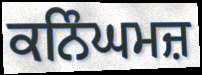
ਕਨਿੰਘਮਜ਼